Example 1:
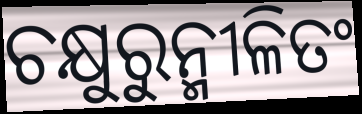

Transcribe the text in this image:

ଚକ୍ଷୁରୁନ୍ମୀଳିତଂ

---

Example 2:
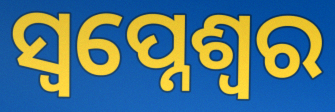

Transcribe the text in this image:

ସ୍ଵପ୍ନେଶ୍ଵର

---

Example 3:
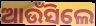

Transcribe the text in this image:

ଆଉଁସିଲେ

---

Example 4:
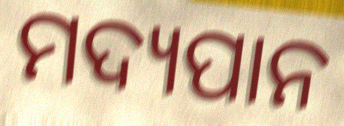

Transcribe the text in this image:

ମଦ୍ୟପାନ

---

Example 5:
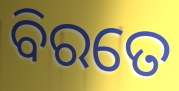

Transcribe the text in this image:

ବିରତେ